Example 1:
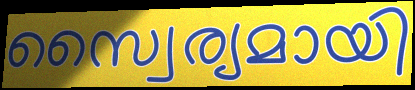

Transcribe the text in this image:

സ്വൈര്യമായി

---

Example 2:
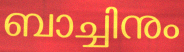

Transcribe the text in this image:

ബാച്ചിനും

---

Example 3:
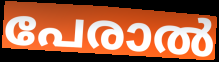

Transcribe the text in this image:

പേരാൽ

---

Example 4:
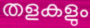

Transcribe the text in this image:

തളകളും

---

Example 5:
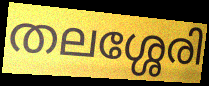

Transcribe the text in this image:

തലശ്ശേരി